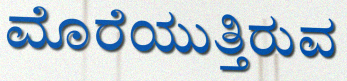
ಮೊರೆಯುತ್ತಿರುವ